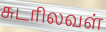
சுடரிலவள்